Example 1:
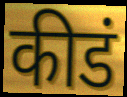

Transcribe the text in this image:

कीडं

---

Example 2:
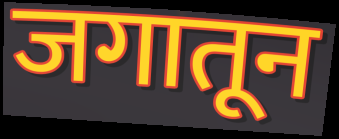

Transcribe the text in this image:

जगातून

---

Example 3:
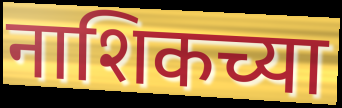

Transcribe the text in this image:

नाशिकच्या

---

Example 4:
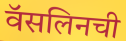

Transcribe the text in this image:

वॅसलिनची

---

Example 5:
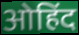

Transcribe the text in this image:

ओहिंद